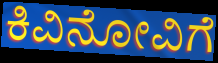
ಕಿವಿನೋವಿಗೆ